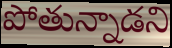
పోతున్నాడని